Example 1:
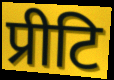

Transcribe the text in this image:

प्रीटि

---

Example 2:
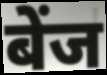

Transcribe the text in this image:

बेंज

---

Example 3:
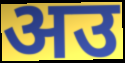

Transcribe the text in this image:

अउ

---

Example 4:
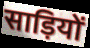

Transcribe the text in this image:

साड़ियों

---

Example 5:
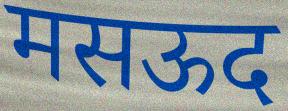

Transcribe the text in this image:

मसऊद